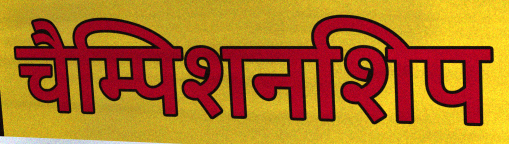
चैम्पिशनशिप